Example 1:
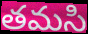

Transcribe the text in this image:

తమసి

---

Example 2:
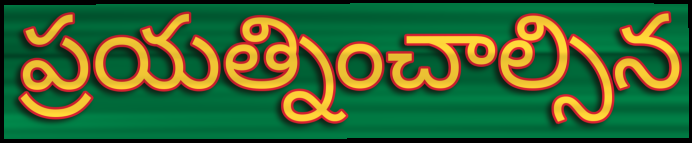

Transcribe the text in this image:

ప్రయత్నించాల్సిన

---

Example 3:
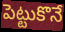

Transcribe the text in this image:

పెట్టుకొనే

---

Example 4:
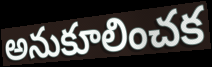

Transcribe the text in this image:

అనుకూలించక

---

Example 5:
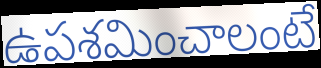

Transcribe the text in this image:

ఉపశమించాలంటే